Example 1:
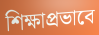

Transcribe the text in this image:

শিক্ষাপ্রভাবে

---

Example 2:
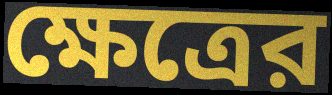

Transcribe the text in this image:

ক্ষেত্রের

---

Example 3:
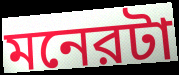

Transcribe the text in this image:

মনেরটা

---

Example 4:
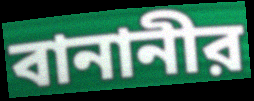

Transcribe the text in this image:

বানানীর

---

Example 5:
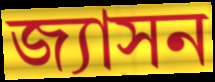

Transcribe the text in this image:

জ্যাসন